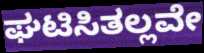
ಘಟಿಸಿತಲ್ಲವೇ